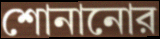
শোনানোর